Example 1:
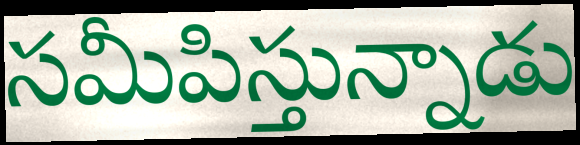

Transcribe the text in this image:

సమీపిస్తున్నాడు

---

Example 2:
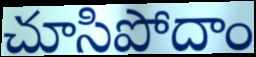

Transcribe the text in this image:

చూసిపోదాం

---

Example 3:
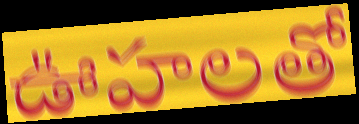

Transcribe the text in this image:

ఊహలతో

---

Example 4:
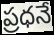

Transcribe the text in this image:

ప్రధనే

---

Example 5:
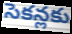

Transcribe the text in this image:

సెకన్లకు